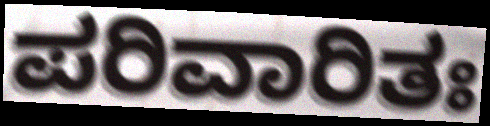
ಪರಿವಾರಿತಃ